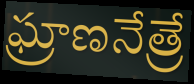
ఘ్రాణనేత్రే